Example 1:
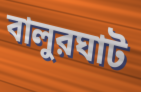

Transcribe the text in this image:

বালুরঘাট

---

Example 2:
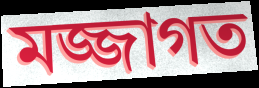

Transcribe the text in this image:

মজ্জাগত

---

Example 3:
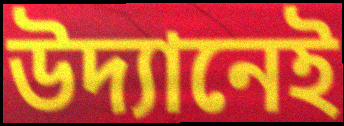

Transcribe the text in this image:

উদ্যানেই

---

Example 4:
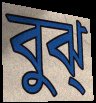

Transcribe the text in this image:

বুঝ্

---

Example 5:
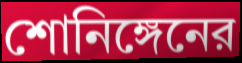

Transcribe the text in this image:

শোনিঙ্গেনের